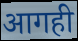
आगही